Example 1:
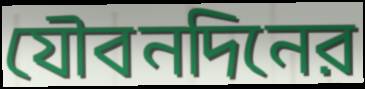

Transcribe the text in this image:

যৌবনদিনের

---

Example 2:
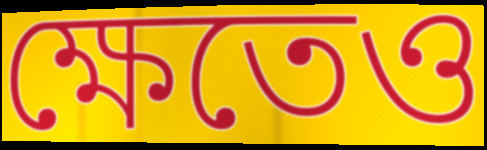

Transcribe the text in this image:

ক্ষেতেও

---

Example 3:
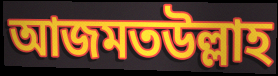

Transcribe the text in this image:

আজমতউল্লাহ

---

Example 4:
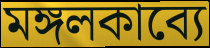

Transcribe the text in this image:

মঙ্গলকাব্যে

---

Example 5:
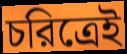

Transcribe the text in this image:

চরিত্রেই